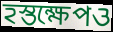
হস্তক্ষেপও